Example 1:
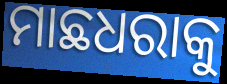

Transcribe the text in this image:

ମାଛଧରାକୁ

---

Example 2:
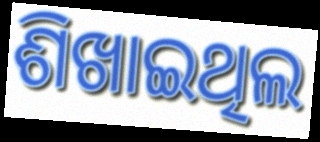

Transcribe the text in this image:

ଶିଖାଇଥିଲ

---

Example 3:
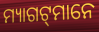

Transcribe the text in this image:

ମ୍ୟାଗଟ୍‌ମାନେ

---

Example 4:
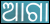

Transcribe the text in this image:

ଆଗା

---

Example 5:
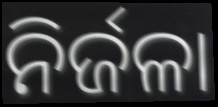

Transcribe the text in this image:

ନିର୍ଜଳା